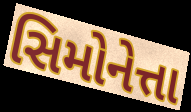
સિમોનેત્તા